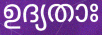
ഉദ്യതാഃ